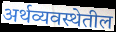
अर्थव्यवस्थेतील